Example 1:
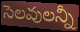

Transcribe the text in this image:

సెలవులన్నీ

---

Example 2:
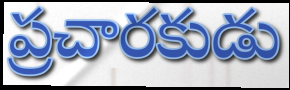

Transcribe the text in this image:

ప్రచారకుడు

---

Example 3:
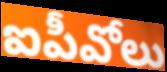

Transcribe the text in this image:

ఐపీవోలు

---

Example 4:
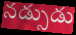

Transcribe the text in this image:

నడ్సుడు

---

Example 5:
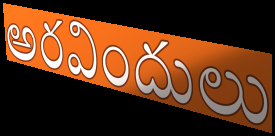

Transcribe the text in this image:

అరవిందులు